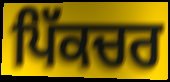
ਪਿੱਕਚਰ